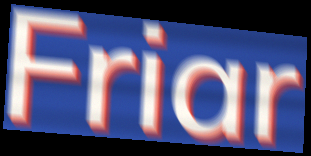
Friar